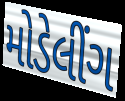
મોડેલીંગ